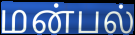
மன்பல்